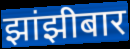
झांझीबार